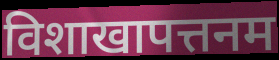
विशाखापत्तनम